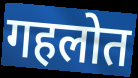
गहलोत